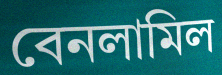
বেনলামিল